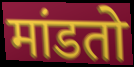
मांडतो